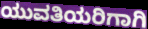
ಯುವತಿಯರಿಗಾಗಿ